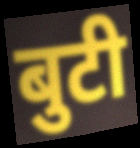
बुटी